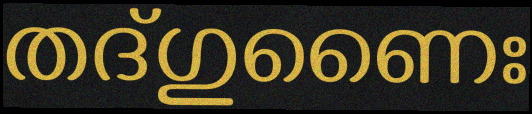
തദ്ഗുണൈഃ